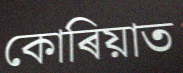
কোৰিয়াত